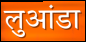
लुआंडा